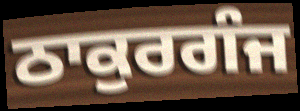
ਠਾਕੁਰਗੰਜ